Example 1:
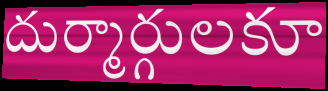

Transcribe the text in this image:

దుర్మార్గులకూ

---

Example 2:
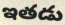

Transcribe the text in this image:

ఇతడు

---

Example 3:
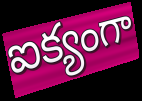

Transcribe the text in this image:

ఐక్యంగా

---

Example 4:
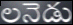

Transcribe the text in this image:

లనెడు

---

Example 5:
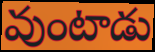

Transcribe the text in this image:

వుంటాడు